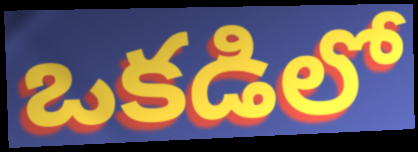
ఒకడిలో